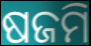
ଷଜମି